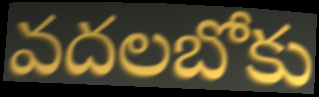
వదలబోకు